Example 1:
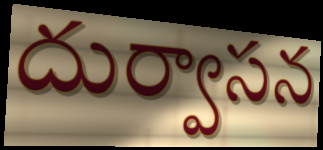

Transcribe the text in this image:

దుర్వాసన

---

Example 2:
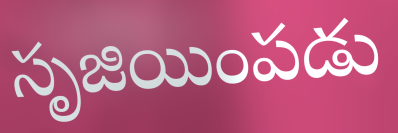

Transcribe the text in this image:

సృజియింపడు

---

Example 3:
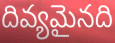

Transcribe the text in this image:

దివ్యమైనది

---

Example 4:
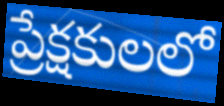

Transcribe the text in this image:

ప్రేక్షకులలో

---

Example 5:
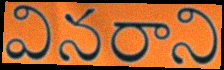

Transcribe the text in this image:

వినరాని